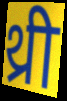
थ्री